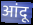
आंदू